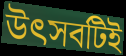
উৎসবটিই